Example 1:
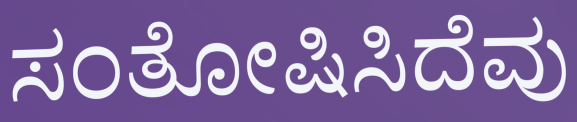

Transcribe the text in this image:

ಸಂತೋಷಿಸಿದೆವು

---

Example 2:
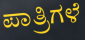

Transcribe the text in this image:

ಪಾತ್ರಿಗಳೆ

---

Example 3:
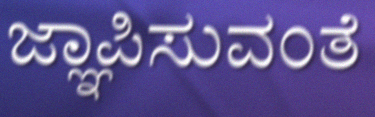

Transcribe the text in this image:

ಜ್ಞಾಪಿಸುವಂತೆ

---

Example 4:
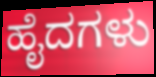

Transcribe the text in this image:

ಹೈದಗಳು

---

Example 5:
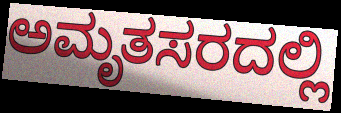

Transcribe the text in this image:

ಅಮೃತಸರದಲ್ಲಿ